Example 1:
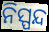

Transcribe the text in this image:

ନିସ୍ପନ୍ଦ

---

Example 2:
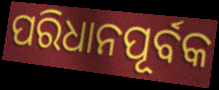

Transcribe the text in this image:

ପରିଧାନପୂର୍ବକ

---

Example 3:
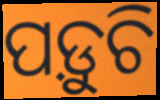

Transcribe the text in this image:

ପଡ଼ୁଚି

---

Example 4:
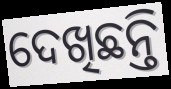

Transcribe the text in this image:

ଦେଖିଛନ୍ତି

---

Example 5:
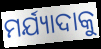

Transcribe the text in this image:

ମର୍ଯ୍ୟାଦାକୁ